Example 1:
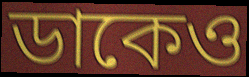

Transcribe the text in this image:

ডাকেও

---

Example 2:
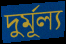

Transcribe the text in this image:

দুর্মূল্য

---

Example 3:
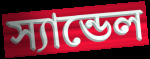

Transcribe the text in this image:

স্যান্ডেল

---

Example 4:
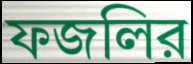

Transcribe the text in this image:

ফজলির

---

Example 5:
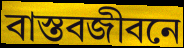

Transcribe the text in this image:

বাস্তবজীবনে